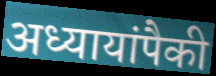
अध्यायांपैकी